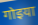
गोइया